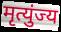
मृत्युंज्य